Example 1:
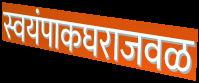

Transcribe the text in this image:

स्वयंपाकघराजवळ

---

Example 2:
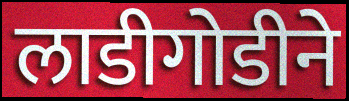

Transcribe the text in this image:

लाडीगोडीने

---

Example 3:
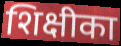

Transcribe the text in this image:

शिक्षीका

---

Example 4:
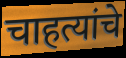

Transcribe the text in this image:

चाहत्यांचे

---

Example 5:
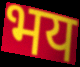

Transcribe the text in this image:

भय